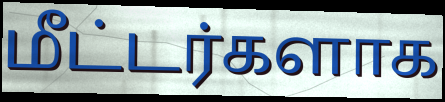
மீட்டர்களாக